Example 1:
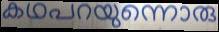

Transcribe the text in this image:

കഥപറയുന്നൊരു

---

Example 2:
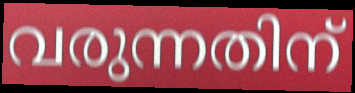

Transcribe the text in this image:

വരുന്നതിന്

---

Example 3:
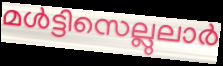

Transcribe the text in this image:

മൾട്ടിസെല്ലുലാർ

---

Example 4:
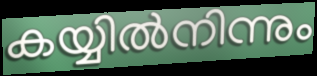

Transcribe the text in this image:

കയ്യിൽനിന്നും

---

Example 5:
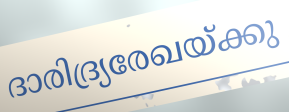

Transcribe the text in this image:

ദാരിദ്ര്യരേഖയ്ക്കു